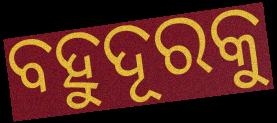
ବହୁଦୂରକୁ